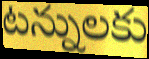
టన్నులకు